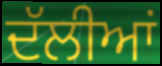
ਦੱਲੀਆਂ